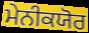
ਮੇਨੀਕਯੋਰ